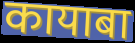
कायाबा